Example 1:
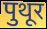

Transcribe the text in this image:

पुथूर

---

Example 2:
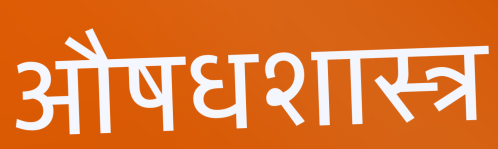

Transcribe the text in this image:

औषधशास्त्र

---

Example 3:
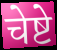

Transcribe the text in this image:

चेष्टे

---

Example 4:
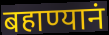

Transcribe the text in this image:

बहाण्यानं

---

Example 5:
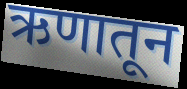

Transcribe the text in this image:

ऋणातून